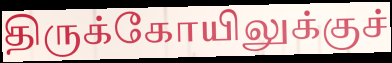
திருக்கோயிலுக்குச்